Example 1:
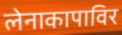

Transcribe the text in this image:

लेनाकापाविर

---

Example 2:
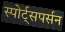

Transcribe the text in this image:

स्पोर्ट्सपर्सन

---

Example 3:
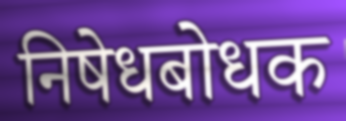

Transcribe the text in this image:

निषेधबोधक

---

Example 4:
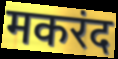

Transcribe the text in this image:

मकरंद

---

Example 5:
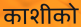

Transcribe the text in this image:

काशीको